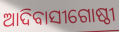
ଆଦିବାସୀଗୋଷ୍ଠୀ